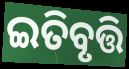
ଇତିବୃତ୍ତି